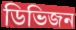
ডিভিজন